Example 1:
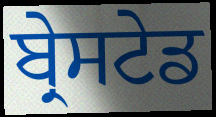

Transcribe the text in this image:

ਬ੍ਰੇਸਟੇਡ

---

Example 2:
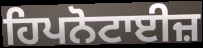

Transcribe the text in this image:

ਹਿਪਨੋਟਾਈਜ਼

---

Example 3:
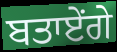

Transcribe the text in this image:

ਬਤਾਏਂਗੇ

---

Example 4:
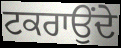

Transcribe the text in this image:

ਟਕਰਾਉਂਦੇ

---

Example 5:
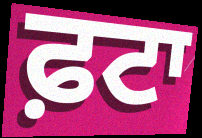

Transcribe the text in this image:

ਫ਼ਟਾ